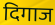
दिगाज